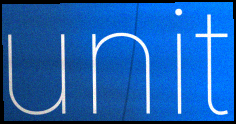
unit